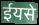
ईयसे